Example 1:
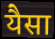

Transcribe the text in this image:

यैसा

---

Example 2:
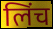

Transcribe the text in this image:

लिंच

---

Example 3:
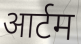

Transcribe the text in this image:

आर्टम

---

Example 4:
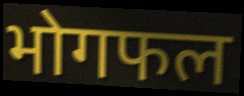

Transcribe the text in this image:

भोगफल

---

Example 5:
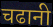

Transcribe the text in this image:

चढानी